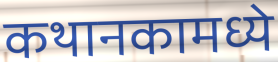
कथानकामध्ये